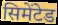
सिमेंटेड